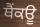
ਥੈਂਕਊ